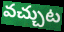
వచ్చుట